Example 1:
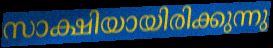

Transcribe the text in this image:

സാക്ഷിയായിരിക്കുന്നു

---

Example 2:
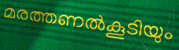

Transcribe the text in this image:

മരത്തണൽകൂടിയും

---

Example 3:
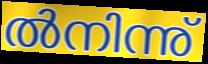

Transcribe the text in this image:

ൽനിന്നു്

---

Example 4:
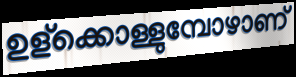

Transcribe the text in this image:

ഉള്ക്കൊള്ളുമ്പോഴാണ്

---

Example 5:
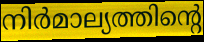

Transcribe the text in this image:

നിർമാല്യത്തിന്റെ